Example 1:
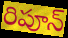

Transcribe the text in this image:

రిపూన్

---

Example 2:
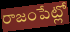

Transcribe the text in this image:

రాజంపేట్లో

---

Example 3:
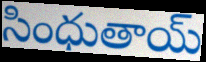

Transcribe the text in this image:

సింధుతాయ్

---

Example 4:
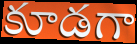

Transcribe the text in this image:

కూడగా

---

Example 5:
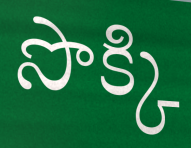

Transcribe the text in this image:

సొక్కి